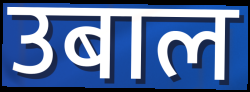
उबाल